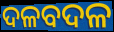
ଦଳବଦଳ